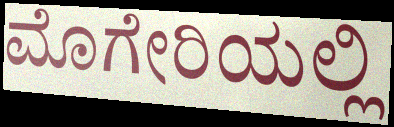
ಮೊಗೇರಿಯಲ್ಲಿ